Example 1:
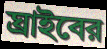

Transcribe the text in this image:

ঘ্রাইবের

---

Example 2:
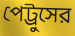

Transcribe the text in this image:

পেট্রুসের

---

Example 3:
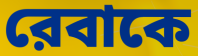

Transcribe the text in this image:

রেবাকে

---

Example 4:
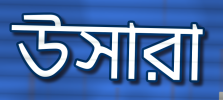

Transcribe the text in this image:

উসারা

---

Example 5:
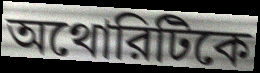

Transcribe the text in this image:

অথোরিটিকে